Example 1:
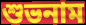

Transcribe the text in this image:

শুভনাম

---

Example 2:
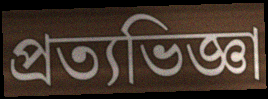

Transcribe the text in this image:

প্রত্যভিজ্ঞা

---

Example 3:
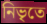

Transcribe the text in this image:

নিভৃতে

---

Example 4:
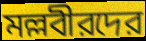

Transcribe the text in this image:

মল্লবীরদের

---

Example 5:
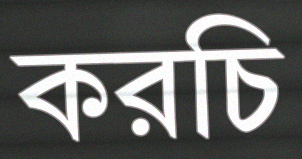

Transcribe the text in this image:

করচি